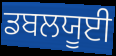
ਡਬਲਯੂਈ